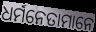
ଧର୍ମନେତାମାନେ